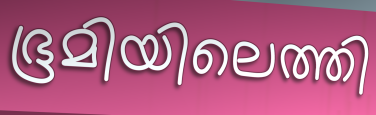
ഭൂമിയിലെത്തി